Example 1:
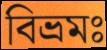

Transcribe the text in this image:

বিভ্রমঃ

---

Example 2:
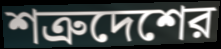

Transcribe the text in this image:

শত্রুদেশের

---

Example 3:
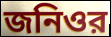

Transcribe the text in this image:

জনিওর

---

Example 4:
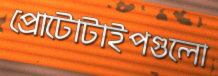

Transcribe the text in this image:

প্রোটোটাইপগুলো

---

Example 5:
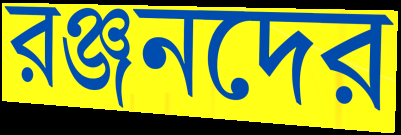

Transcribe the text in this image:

রঞ্জনদের